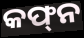
କଫ୍‌ନ